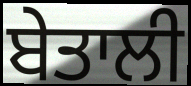
ਬੇਤਾਲੀ